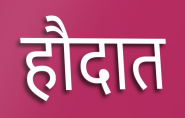
हौदात